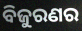
ବିଜୁରଣର